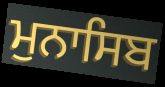
ਮੁਨਾਸਿਬ